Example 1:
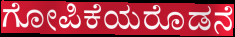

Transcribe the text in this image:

ಗೋಪಿಕೆಯರೊಡನೆ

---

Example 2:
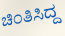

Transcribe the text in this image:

ಚಿಂತಿಸಿದ್ದ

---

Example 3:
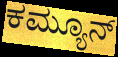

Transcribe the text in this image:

ಕಮ್ಯೂನ್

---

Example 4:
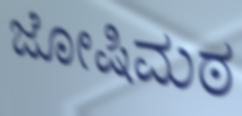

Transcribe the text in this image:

ಜೋಷಿಮಠ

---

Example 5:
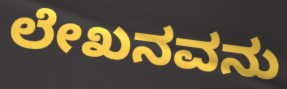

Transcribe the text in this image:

ಲೇಖನವನು